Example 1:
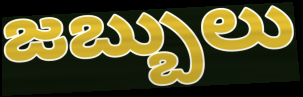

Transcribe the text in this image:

జబ్బులు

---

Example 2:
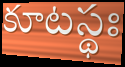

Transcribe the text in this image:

కూటస్థః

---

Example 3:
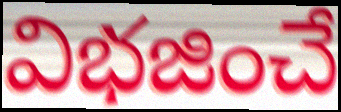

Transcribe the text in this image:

విభజించే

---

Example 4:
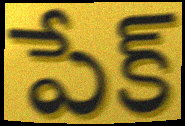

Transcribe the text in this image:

పేక్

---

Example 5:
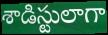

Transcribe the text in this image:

శాడిస్టులాగా